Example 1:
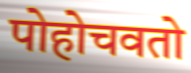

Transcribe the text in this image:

पोहोचवतो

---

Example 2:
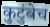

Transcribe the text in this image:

कुटुंबेच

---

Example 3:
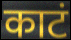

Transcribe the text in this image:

काटं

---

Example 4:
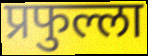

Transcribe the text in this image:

प्रफुल्ला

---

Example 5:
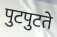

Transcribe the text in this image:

पुटपुटते